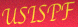
USISPF